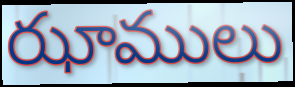
ఝాములు